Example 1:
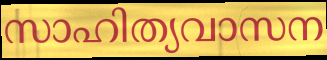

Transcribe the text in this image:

സാഹിത്യവാസന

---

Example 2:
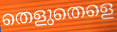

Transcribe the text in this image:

തെളുതെളെ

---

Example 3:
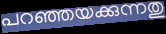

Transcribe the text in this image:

പറഞ്ഞയക്കുന്നതു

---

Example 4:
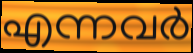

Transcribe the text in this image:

എന്നവർ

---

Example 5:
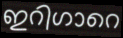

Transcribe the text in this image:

ഇറിഗാറെ